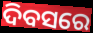
ଦିବସରେ